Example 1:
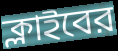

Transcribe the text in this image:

ক্লাইবের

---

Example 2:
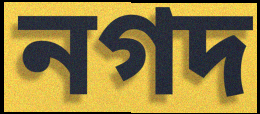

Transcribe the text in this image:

নগদ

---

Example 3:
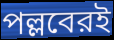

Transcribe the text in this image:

পল্লবেরই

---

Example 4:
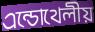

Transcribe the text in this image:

এন্ডোথেলীয়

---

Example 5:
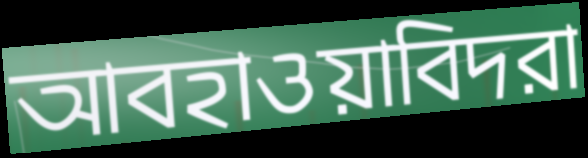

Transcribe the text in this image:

আবহাওয়াবিদরা